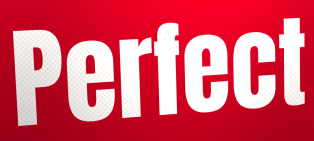
Perfect